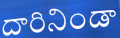
దారినిండా